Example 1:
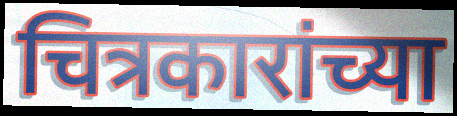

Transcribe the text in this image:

चित्रकारांच्या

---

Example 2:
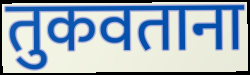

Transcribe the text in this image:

तुकवताना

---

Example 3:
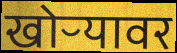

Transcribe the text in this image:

खोऱ्यावर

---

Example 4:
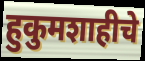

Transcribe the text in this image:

हुकुमशाहीचे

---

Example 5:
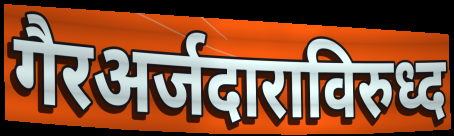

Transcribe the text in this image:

गैरअर्जदाराविरुध्द